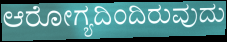
ಆರೋಗ್ಯದಿಂದಿರುವುದು